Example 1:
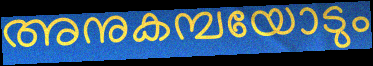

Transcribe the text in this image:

അനുകമ്പയോടും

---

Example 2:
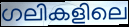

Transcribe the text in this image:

ഗലികളിലെ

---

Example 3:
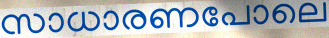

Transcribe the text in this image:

സാധാരണപോലെ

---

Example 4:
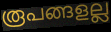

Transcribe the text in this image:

രൂപങ്ങളല്ല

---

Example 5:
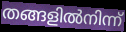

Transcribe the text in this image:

തങ്ങളിൽനിന്ന്